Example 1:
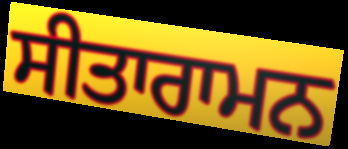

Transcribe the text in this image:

ਸੀਤਾਰਾਮਨ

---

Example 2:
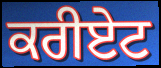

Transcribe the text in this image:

ਕਰੀਏਟ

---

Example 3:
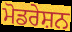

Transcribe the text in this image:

ਮੋਡਰੇਸ਼ਨ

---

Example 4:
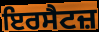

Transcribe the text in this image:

ਇਰਸੈਟਜ਼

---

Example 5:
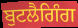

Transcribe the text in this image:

ਬੁਟਲੈਗਿੰਗ